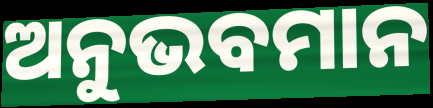
ଅନୁଭବମାନ